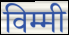
विम्मी